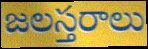
జలస్తరాలు